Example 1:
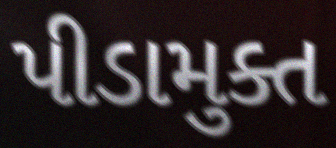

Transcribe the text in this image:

પીડામુક્ત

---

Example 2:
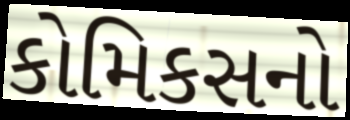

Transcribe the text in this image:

કોમિકસનો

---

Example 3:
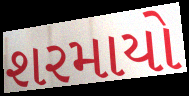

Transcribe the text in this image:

શરમાયો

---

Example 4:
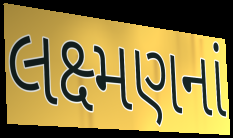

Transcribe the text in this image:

લક્ષ્મણનાં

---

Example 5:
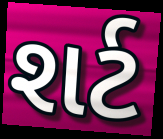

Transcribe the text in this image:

શર્ટ